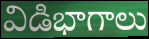
విడిభాగాలు